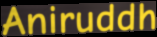
Aniruddh